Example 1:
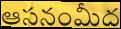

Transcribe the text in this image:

ఆసనంమీద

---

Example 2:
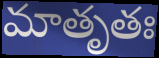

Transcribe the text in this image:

మాతృతః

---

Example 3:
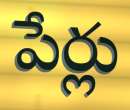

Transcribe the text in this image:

పేర్లు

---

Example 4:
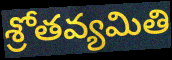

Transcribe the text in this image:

శ్రోతవ్యమితి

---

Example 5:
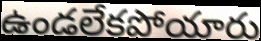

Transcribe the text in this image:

ఉండలేకపోయారు